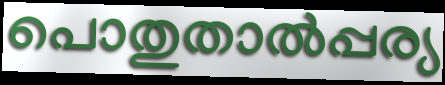
പൊതുതാൽപ്പര്യ